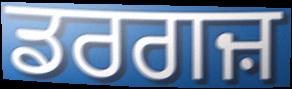
ਡਰਗਜ਼